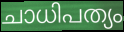
ചാധിപത്യം